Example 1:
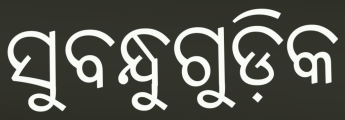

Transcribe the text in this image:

ସୁବନ୍ଧୁଗୁଡ଼ିକ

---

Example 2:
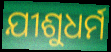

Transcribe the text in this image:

ଯୀଶୁଧର୍ମ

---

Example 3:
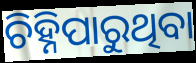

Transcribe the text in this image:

ଚିହ୍ନିପାରୁଥିବା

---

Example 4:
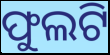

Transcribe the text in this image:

ଫୁଲଟି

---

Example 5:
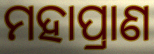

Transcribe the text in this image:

ମହାପ୍ରାଣ